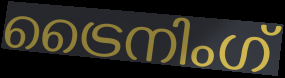
ട്രൈനിംഗ്